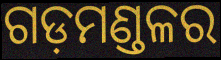
ଗଡ଼ମଣ୍ଡଳର